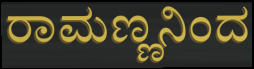
ರಾಮಣ್ಣನಿಂದ